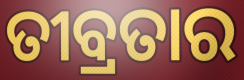
ତୀବ୍ରତାର